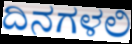
ದಿನಗಳಲಿ